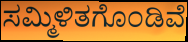
ಸಮ್ಮಿಳಿತಗೊಂಡಿವೆ